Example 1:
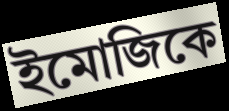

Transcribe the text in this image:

ইমোজিকে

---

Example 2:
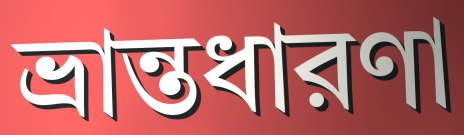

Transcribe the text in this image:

ভ্রান্তধারণা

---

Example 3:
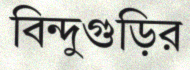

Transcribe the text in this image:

বিন্দুগুড়ির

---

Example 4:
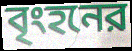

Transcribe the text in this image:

বৃংহনের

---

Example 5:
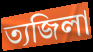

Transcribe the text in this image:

ত্যজিলা